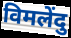
विमलेंदु